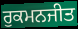
ਰੁਕਮਨਜੀਤ